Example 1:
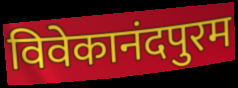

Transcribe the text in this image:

विवेकानंदपुरम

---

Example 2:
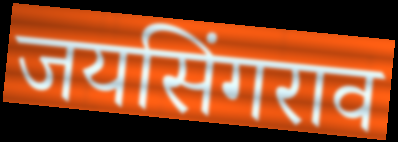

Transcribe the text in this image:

जयसिंगराव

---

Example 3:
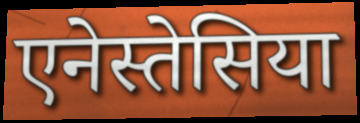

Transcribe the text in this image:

एनेस्तेसिया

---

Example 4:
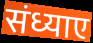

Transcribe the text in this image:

संध्याए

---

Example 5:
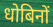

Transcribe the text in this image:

धोबिनों